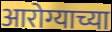
आरोग्याच्या